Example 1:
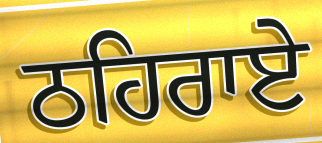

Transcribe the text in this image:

ਠਹਿਰਾਏ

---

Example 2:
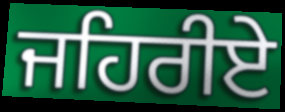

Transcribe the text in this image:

ਜਹਿਰੀਏ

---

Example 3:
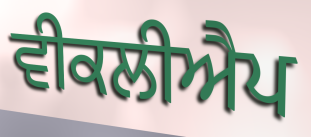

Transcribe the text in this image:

ਵੀਕਲੀਐਪ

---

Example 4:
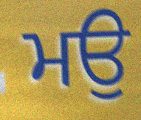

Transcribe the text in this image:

ਮਉ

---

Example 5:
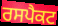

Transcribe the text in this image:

ਰਸਪੈਕਟ